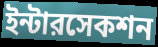
ইন্টারসেকশন